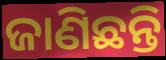
ଜାଣିଛନ୍ତି